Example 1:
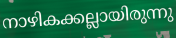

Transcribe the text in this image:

നാഴികക്കല്ലായിരുന്നു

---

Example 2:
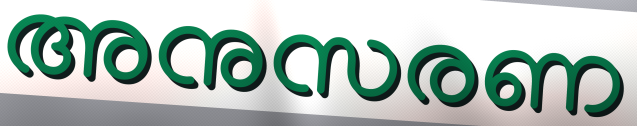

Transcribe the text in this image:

അനുസരണ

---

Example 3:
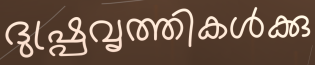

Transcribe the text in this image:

ദുഷ്പ്രവൃത്തികൾക്കു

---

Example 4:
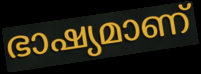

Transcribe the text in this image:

ഭാഷ്യമാണ്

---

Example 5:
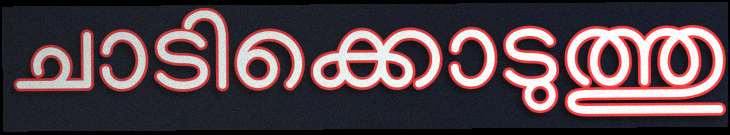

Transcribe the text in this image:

ചാടിക്കൊടുത്തു